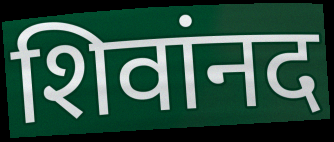
शिवांनद